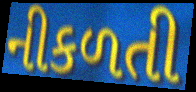
નીકળતી